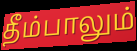
தீம்பாலும்